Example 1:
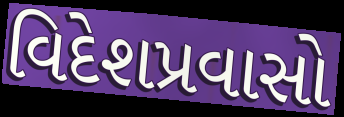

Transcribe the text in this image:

વિદેશપ્રવાસો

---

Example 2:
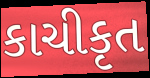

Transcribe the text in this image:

કાચીકૃત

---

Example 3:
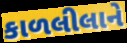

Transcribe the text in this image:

કાળલીલાને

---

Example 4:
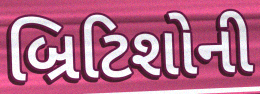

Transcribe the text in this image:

બ્રિટિશોની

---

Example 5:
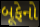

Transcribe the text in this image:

બૂફેનો